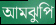
আমঝুপি